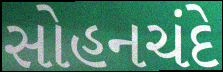
સોહનચંદે